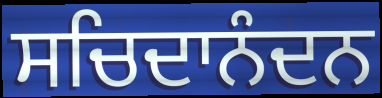
ਸਚਿਦਾਨੰਦਨ